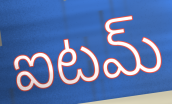
ఐటమ్